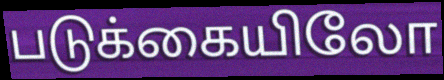
படுக்கையிலோ